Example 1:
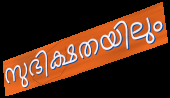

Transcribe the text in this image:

സുഭിക്ഷതയിലും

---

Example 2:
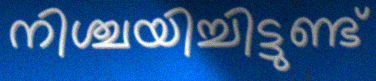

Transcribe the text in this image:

നിശ്ചയിച്ചിട്ടുണ്ട്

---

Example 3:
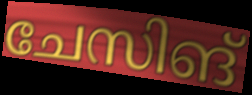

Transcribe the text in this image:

ചേസിങ്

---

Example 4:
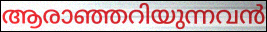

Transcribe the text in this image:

ആരാഞ്ഞറിയുന്നവൻ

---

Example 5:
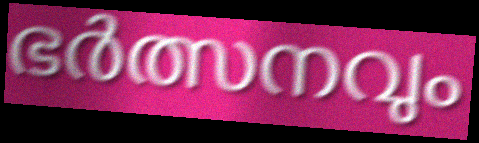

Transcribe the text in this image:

ഭർത്സനവും